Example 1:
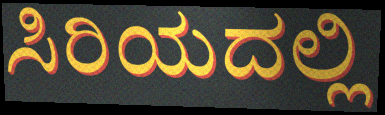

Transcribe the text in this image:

ಸಿರಿಯದಲ್ಲಿ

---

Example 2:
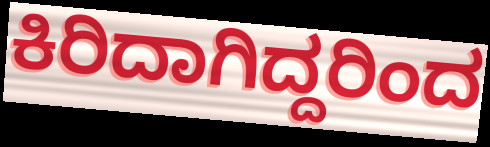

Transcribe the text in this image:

ಕಿರಿದಾಗಿದ್ದರಿಂದ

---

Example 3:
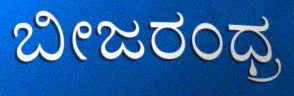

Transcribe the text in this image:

ಬೀಜರಂಧ್ರ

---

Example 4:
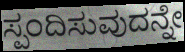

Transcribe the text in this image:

ಸ್ಪಂದಿಸುವುದನ್ನೇ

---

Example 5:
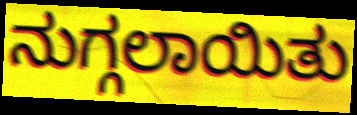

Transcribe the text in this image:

ನುಗ್ಗಲಾಯಿತು